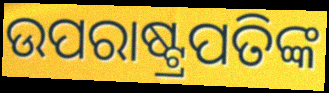
ଉପରାଷ୍ଟ୍ରପତିଙ୍କ